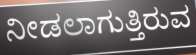
ನೀಡಲಾಗುತ್ತಿರುವ